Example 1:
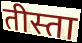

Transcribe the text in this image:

तीस्ता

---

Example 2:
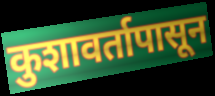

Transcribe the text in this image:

कुशावर्तापासून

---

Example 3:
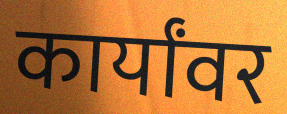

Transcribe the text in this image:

कार्यांवर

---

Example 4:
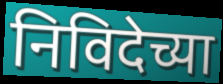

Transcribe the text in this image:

निविदेच्या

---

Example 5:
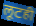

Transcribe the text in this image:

लूटही